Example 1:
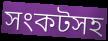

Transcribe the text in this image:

সংকটসহ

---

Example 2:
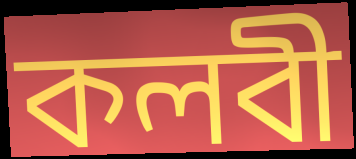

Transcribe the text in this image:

কলবী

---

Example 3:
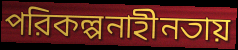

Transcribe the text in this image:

পরিকল্পনাহীনতায়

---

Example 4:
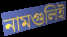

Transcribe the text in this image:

নামগুলিই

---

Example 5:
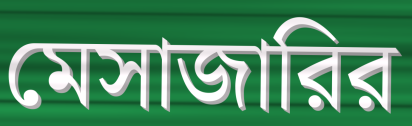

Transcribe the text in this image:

মেসাজারির